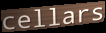
cellars